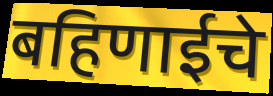
बहिणाईचे